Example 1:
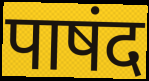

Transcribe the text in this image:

पाषंद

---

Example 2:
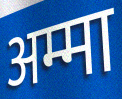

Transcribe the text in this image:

अम्‍मा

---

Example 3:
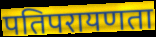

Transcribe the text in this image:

पतिपरायणता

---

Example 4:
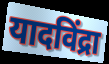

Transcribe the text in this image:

यादविंद्रा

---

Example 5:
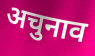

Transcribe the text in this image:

अचुनाव